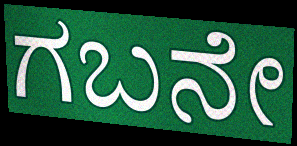
ಗಬನೇ